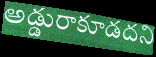
అడ్డురాకూడదని